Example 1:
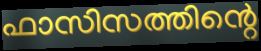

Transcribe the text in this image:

ഫാസിസത്തിന്റെ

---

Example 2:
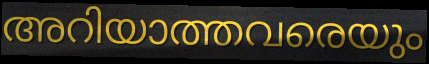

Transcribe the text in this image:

അറിയാത്തവരെയും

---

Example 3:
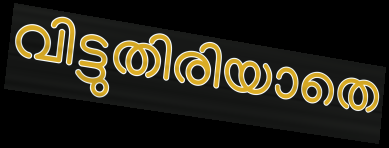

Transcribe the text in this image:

വിട്ടുതിരിയാതെ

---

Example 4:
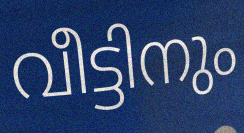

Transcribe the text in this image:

വീട്ടിനും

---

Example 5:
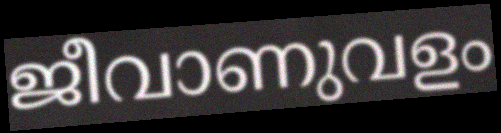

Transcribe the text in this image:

ജീവാണുവളം